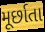
મૂર્છાતા